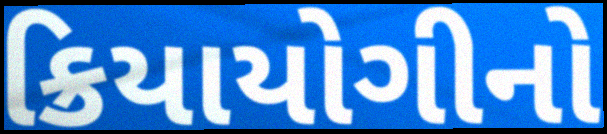
ક્રિયાયોગીનો